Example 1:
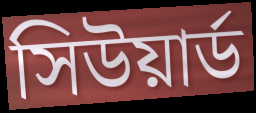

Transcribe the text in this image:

সিউয়ার্ড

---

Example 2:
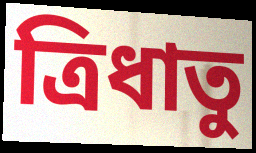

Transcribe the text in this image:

ত্রিধাতু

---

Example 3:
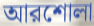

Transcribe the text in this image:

আরশোলা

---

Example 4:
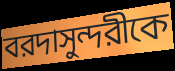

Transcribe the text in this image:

বরদাসুন্দরীকে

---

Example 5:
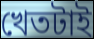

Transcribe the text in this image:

খেতটাই